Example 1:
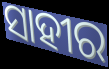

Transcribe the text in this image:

ସାହୀର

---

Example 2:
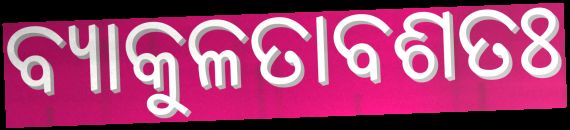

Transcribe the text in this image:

ବ୍ୟାକୁଳତାବଶତଃ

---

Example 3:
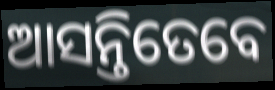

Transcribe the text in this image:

ଆସନ୍ତିତେବେ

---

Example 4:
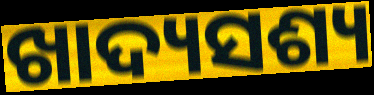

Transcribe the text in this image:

ଖାଦ୍ୟସଶ୍ୟ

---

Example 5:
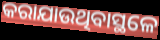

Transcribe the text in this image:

କରାଯାଉଥିବାସ୍ଥଳେ